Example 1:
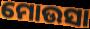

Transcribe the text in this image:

ମୋଉସା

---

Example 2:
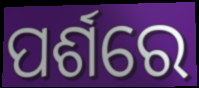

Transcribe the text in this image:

ପର୍ଶରେ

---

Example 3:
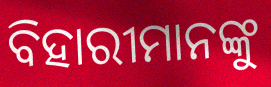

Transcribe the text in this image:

ବିହାରୀମାନଙ୍କୁ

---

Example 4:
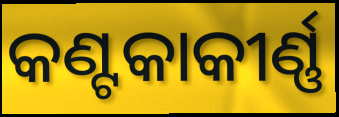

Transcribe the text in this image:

କଣ୍ଟକାକୀର୍ଣ୍ଣ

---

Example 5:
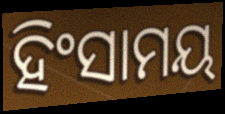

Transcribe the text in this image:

ହିଂସାମୟ